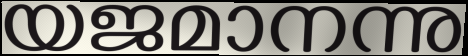
യജമാനന്നു